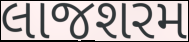
લાજશરમ